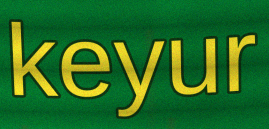
keyur